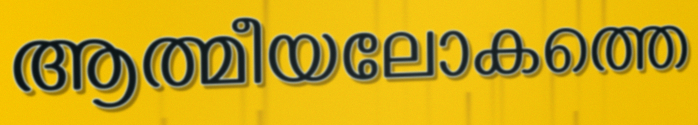
ആത്മീയലോകത്തെ